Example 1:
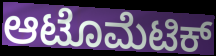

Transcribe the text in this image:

ಆಟೊಮೆಟಿಕ್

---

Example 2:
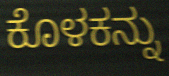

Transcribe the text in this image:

ಕೊಳಕನ್ನು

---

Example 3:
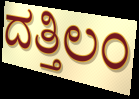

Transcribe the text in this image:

ದತ್ತಿಲಂ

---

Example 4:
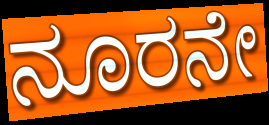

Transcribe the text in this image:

ನೂರನೇ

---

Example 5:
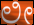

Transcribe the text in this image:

ಲೀ